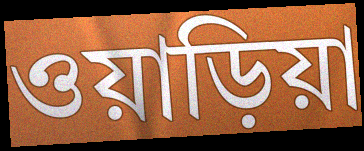
ওয়াড়িয়া